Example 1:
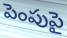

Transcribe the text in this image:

పెంపుపై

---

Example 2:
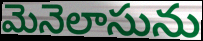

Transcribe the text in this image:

మెనెలాసును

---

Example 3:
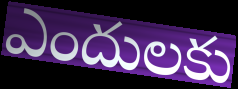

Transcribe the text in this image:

ఎందులకు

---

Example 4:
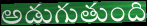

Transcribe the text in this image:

అడుగుతుంది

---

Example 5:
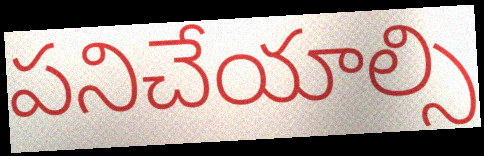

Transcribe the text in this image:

పనిచేయాల్సి